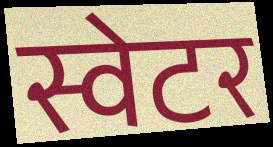
स्वेटर